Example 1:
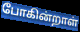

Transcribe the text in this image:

போகின்றாள்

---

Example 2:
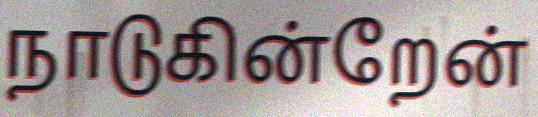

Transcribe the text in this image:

நாடுகின்றேன்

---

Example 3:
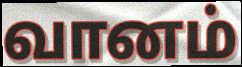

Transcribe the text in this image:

வானம்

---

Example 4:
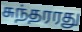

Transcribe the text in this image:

சுந்தரரது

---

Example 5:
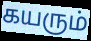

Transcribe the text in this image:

கயரும்